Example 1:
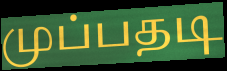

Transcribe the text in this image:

முப்பதடி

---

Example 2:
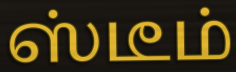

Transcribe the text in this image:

ஸ்டீம்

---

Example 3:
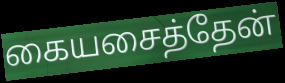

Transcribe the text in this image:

கையசைத்தேன்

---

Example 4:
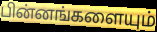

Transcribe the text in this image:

பின்னங்களையும்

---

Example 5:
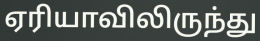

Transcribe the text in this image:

ஏரியாவிலிருந்து